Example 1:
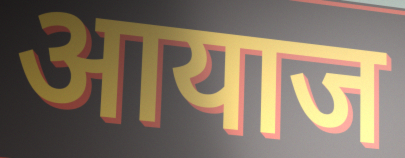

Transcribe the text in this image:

आयाज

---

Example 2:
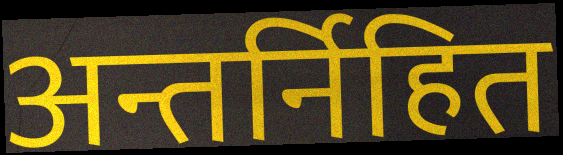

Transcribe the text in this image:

अन्तर्निहित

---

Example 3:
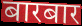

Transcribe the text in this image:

बारबार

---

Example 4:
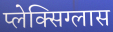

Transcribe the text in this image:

प्लेक्सिग्लास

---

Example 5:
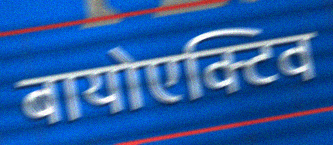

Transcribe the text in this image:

बायोएक्टिव